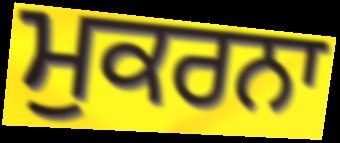
ਮੁਕਰਨਾ